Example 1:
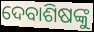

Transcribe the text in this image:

ଦେବାଶିଷଙ୍କୁ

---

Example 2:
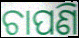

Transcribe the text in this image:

ଚାପଣି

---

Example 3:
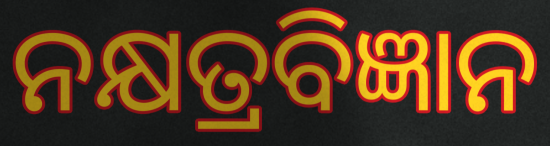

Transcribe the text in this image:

ନକ୍ଷତ୍ରବିଜ୍ଞାନ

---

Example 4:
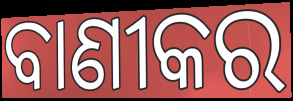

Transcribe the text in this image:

ବାଣୀକର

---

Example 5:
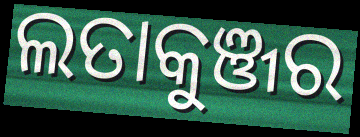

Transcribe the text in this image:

ଲତାକୁଞ୍ଜର